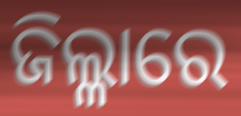
ଜିଲ୍ଳାରେ